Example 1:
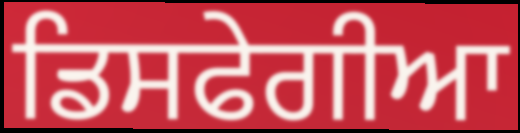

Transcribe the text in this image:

ਡਿਸਫੇਗੀਆ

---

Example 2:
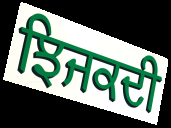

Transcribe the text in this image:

ਝਿਜਕਦੀ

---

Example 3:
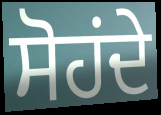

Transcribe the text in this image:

ਸੋਹਂਦੇ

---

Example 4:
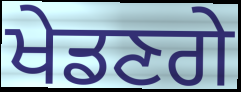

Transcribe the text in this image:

ਖੇਡਣਗੇ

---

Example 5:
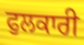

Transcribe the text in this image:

ਫੁਲਕਾਰੀ